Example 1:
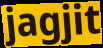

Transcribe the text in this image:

jagjit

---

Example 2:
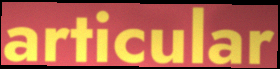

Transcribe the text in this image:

articular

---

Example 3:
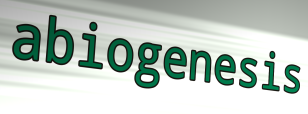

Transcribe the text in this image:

abiogenesis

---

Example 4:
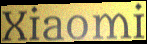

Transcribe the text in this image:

Xiaomi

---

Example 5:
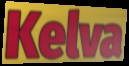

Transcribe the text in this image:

Kelva